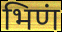
भिणं